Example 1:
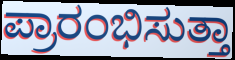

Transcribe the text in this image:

ಪ್ರಾರಂಭಿಸುತ್ತಾ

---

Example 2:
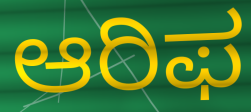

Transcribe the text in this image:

ಆರಿಫ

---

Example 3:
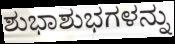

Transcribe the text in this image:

ಶುಭಾಶುಭಗಳನ್ನು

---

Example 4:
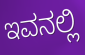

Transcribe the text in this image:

ಇವನಲ್ಲಿ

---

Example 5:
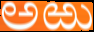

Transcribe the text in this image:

ಅಱು